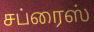
சப்ரைஸ்